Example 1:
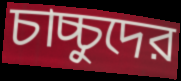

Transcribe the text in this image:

চাচ্চুদের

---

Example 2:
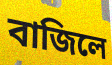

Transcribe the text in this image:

বাজিলে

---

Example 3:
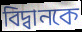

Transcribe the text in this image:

বিদ্বানকে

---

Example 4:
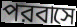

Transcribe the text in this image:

পরবাসে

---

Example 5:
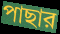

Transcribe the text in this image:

পাছার